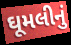
ઘૂમલીનું